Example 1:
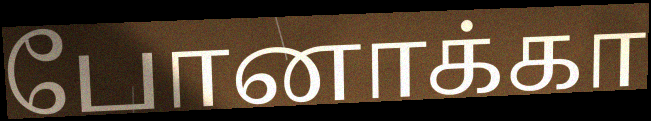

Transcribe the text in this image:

போனாக்கா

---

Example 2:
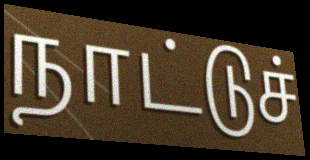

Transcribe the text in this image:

நாட்டுச்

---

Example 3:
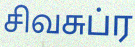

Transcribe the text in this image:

சிவசுப்ர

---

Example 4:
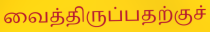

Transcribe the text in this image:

வைத்திருப்பதற்குச்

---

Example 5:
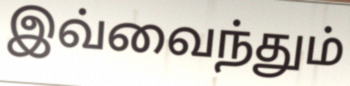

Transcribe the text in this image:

இவ்வைந்தும்